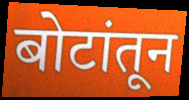
बोटांतून